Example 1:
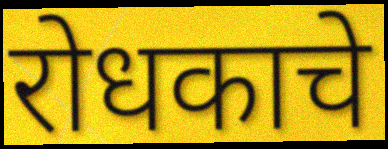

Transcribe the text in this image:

रोधकाचे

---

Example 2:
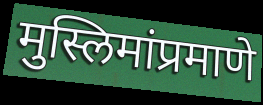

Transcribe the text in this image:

मुस्लिमांप्रमाणे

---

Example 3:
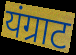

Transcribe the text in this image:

यंग्राट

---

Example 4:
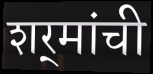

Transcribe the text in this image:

शर्मांची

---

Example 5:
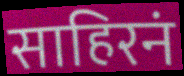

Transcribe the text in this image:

साहिरनं